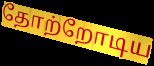
தோற்றோடிய